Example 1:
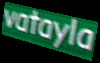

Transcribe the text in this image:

vatayla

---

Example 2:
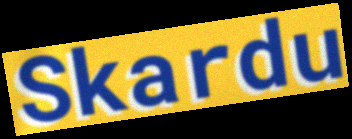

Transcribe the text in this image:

Skardu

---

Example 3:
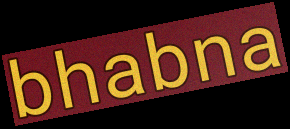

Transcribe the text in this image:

bhabna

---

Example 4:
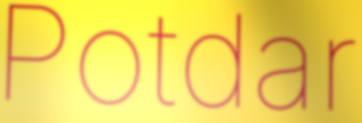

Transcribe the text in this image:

Potdar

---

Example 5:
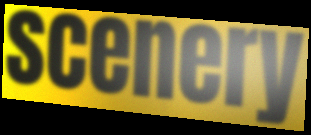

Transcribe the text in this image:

scenery